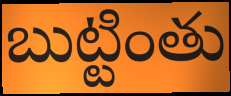
బుట్టింతు